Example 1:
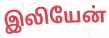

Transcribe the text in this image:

இலியேன்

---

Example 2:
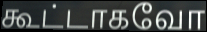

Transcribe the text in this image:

கூட்டாகவோ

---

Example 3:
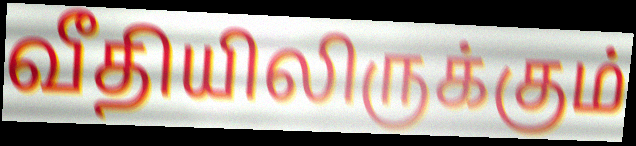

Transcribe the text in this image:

வீதியிலிருக்கும்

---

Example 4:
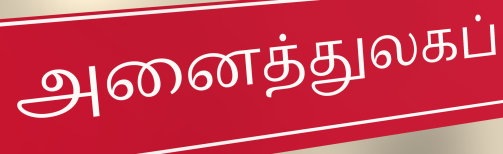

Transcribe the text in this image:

அனைத்துலகப்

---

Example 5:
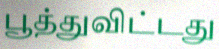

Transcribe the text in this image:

பூத்துவிட்டது